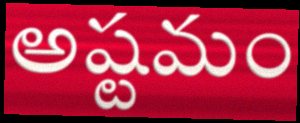
అష్టమం